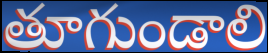
తూగుండాలి